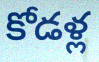
కోడళ్ల